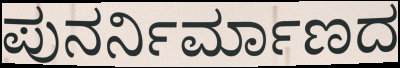
ಪುನರ್ನಿರ್ಮಾಣದ